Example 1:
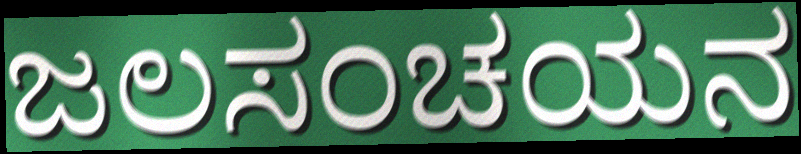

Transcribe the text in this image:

ಜಲಸಂಚಯನ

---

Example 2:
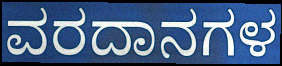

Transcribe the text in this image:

ವರದಾನಗಳ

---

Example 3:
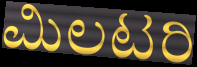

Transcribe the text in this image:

ಮಿಲಟರಿ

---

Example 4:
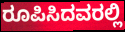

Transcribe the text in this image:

ರೂಪಿಸಿದವರಲ್ಲಿ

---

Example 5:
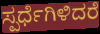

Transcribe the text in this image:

ಸ್ಪರ್ಧೆಗಿಳಿದರೆ